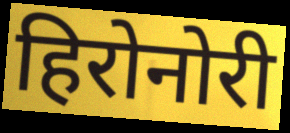
हिरोनोरी